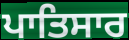
ਪਾਤਿਸਾਰ